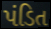
પંડિત